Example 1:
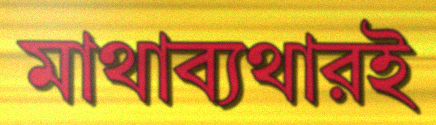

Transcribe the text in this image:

মাথাব্যথারই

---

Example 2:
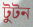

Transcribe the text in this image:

টুটন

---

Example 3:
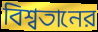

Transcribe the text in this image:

বিশ্বতানের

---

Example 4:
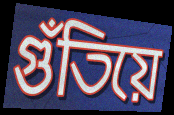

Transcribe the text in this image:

গুঁতিয়ে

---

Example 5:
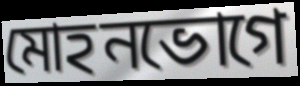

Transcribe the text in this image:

মোহনভোগে